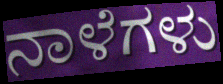
ನಾಳೆಗಳು